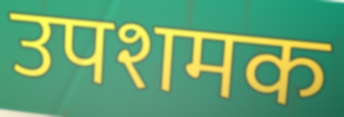
उपशमक